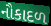
નૌકાદળ